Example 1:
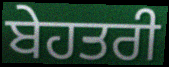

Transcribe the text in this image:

ਬੇਹਤਰੀ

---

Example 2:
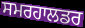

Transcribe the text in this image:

ਸਮਰਹਾਲਡਰ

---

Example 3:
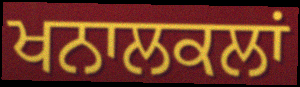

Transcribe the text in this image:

ਖਨਾਲਕਲਾਂ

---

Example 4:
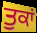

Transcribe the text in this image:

ਤੁਕਾਂ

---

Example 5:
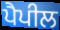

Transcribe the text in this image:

ਪੈਪੀਲ